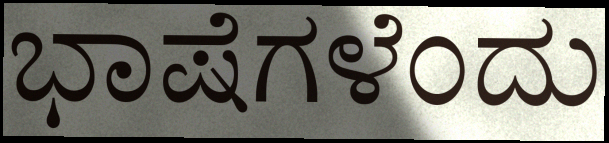
ಭಾಷೆಗಳೆಂದು